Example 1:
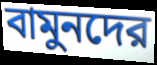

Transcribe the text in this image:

বামুনদের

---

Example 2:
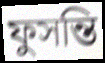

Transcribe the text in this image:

ফুসন্তি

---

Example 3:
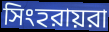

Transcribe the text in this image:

সিংহরায়রা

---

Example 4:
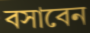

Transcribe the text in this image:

বসাবেন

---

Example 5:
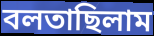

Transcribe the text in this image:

বলতাছিলাম